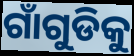
ଗାଁଗୁଡିକୁ